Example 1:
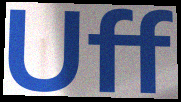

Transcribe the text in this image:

Uff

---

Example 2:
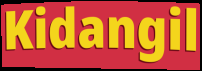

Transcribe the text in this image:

Kidangil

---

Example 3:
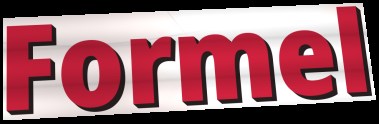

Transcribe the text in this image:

Formel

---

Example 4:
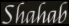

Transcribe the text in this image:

Shahab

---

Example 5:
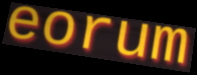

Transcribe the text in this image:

eorum